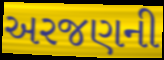
અરજણની